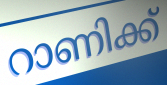
റാണിക്ക്